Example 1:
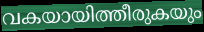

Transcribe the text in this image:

വകയായിത്തീരുകയും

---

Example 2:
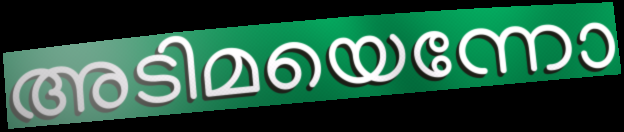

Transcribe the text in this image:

അടിമയെന്നോ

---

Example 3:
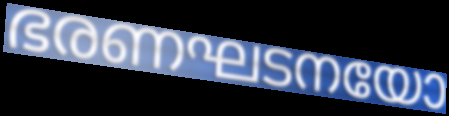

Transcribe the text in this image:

ഭരണഘടനയോ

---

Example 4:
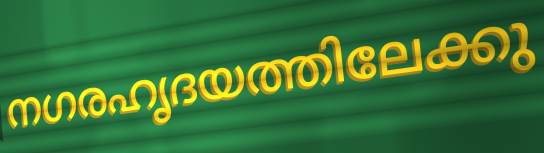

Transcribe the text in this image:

നഗരഹൃദയത്തിലേക്കു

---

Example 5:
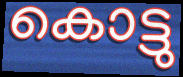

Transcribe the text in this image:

കൊട്ടു